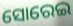
ସୋରେଇ